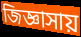
জিজ্ঞাসায়